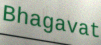
Bhagavat